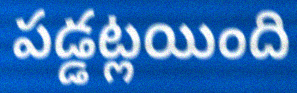
పడ్డట్లయింది